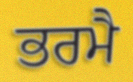
ਭਰਮੈ